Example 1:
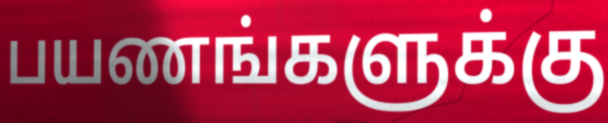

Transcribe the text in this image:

பயணங்களுக்கு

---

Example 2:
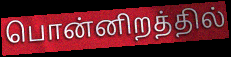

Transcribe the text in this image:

பொன்னிறத்தில்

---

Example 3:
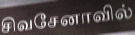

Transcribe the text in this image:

சிவசேனாவில்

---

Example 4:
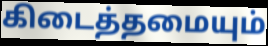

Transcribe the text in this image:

கிடைத்தமையும்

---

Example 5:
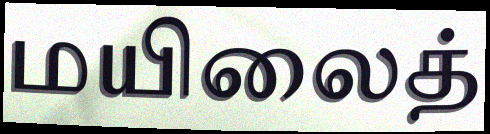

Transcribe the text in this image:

மயிலைத்